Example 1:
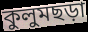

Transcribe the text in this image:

কুলুমছড়া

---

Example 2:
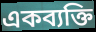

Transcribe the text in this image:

একব্যক্তি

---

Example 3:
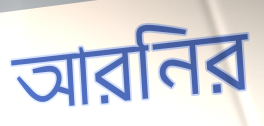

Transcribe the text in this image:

আরনির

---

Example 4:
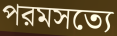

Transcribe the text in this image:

পরমসত্যে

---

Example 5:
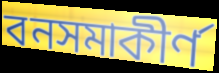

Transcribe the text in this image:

বনসমাকীর্ণ